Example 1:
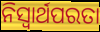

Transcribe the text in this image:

ନିସ୍ଵାର୍ଥପରତା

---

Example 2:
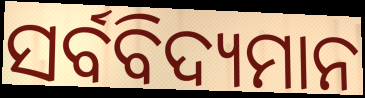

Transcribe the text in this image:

ସର୍ବବିଦ୍ୟମାନ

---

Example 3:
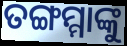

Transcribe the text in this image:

ତଙ୍ଗମ୍ମାଙ୍କୁ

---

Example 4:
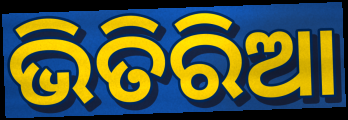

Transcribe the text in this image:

ଭିତିରିଆ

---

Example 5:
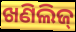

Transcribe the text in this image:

ଖଣିଲିଜ୍